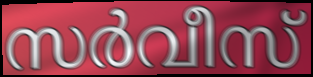
സർവീസ്